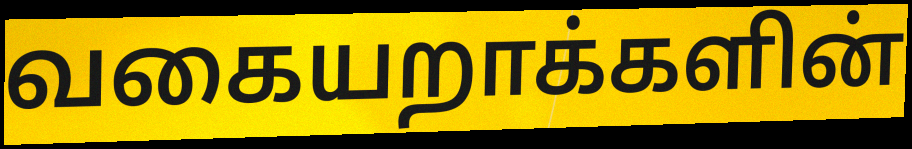
வகையறாக்களின்